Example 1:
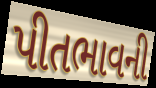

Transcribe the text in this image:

પીતભાવની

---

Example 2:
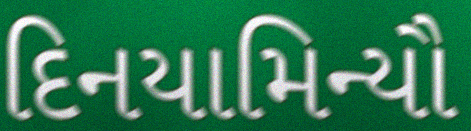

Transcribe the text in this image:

દિનયામિન્યૌ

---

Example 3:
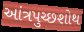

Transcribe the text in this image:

આંત્રપુચ્છશોથ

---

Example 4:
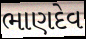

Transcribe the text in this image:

ભાણદેવ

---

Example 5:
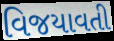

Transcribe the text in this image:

વિજયાવતી